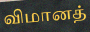
விமானத்